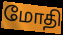
மோதி